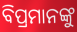
ବିପ୍ରମାନଙ୍କୁ